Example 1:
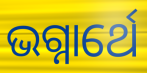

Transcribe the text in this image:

ଭଗ୍ନାର୍ଥେ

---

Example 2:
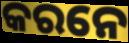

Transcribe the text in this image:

କରନେ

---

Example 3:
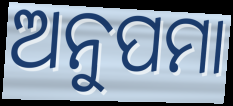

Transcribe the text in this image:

ଅନୁପମା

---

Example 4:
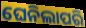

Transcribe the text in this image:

ଘେନିଲାପରି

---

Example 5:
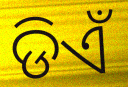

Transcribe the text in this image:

ଡିଏଁ